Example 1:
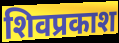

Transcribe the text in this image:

शिवप्रकाश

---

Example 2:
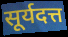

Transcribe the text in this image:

सूर्यदत्त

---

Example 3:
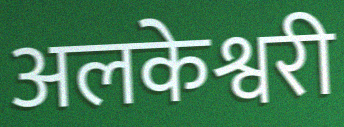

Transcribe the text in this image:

अलकेश्वरी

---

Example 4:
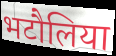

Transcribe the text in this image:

भटौलिया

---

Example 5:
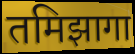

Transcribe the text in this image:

तमिझागा